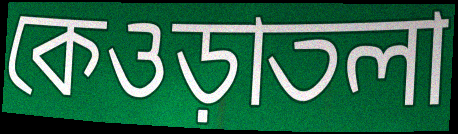
কেওড়াতলা